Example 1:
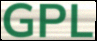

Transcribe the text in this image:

GPL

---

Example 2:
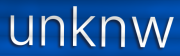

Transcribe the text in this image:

unknw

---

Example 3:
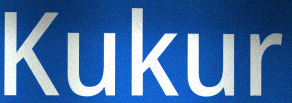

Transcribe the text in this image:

Kukur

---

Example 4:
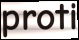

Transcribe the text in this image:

proti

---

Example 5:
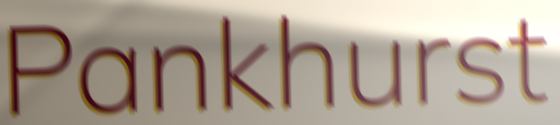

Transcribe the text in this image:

Pankhurst